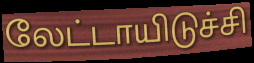
லேட்டாயிடுச்சி